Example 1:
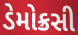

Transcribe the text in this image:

ડેમોક્રસી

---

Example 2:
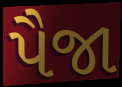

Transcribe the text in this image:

પૈજા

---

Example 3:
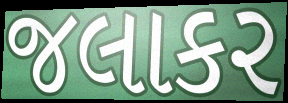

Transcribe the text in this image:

જલાકર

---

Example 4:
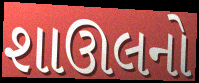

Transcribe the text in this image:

શાઊલનો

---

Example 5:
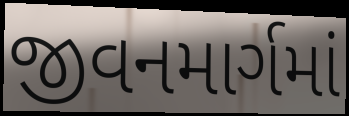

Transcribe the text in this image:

જીવનમાર્ગમાં